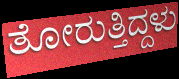
ತೋರುತ್ತಿದ್ದಳು